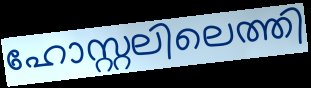
ഹോസ്റ്റലിലെത്തി